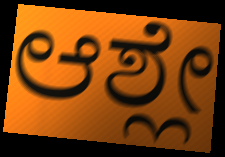
ಆಶ್ಲೇ